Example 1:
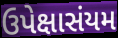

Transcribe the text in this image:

ઉપેક્ષાસંયમ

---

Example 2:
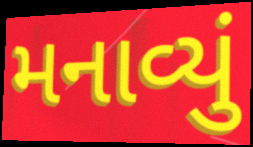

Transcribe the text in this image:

મનાવ્યું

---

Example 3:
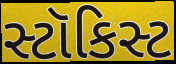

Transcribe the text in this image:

સ્ટૉકિસ્ટ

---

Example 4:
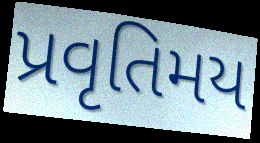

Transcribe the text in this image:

પ્રવૃતિમય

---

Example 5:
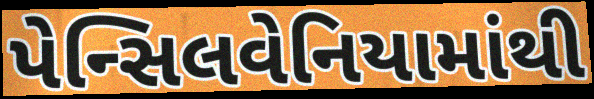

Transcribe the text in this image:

પેન્સિલવેનિયામાંથી